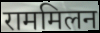
राममिलन